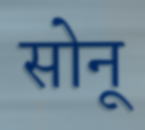
सोनू